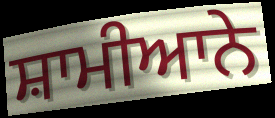
ਸ਼ਾਮੀਆਨੇ